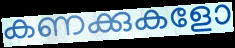
കണക്കുകളോ